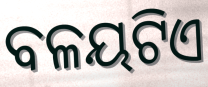
ବଳୟଟିଏ